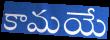
కామయే